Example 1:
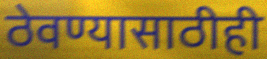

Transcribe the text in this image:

ठेवण्यासाठीही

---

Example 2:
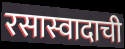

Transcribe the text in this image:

रसास्वादाची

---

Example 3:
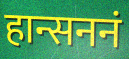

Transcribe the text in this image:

हान्सननं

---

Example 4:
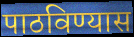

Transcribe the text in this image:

पाठविण्यास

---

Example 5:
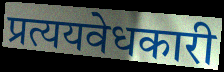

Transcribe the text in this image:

प्रत्ययवेधकारी